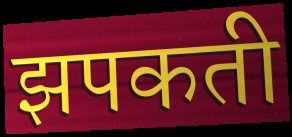
झपकती